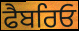
ਫੈਬਰਿਓ